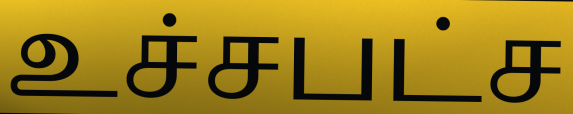
உச்சபட்ச